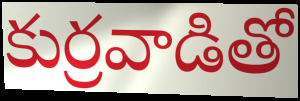
కుర్రవాడితో